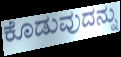
ಕೊಡುವುದನ್ನು